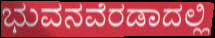
ಭುವನವೆರಡಾದಲ್ಲಿ